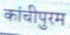
कांचीपुरम